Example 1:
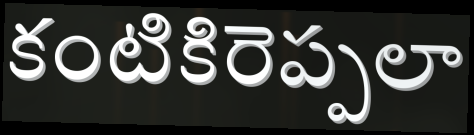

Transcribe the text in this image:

కంటికిరెప్పలా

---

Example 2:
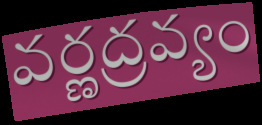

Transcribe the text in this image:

వర్ణద్రవ్యం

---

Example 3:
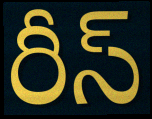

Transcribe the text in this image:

రీస్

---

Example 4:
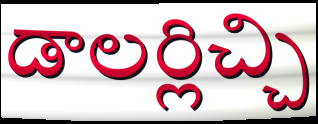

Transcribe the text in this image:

డాలర్లిచ్చి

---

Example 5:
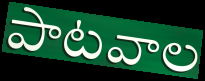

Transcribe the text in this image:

పాటవాల